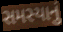
સમસ્યાનું